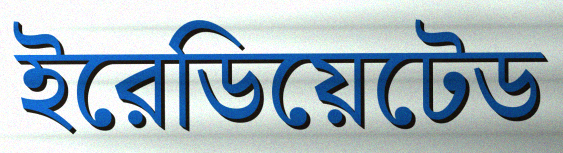
ইরেডিয়েটেড